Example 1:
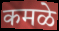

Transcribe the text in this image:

कमळे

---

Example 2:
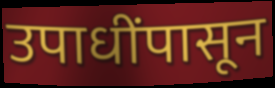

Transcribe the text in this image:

उपाधींपासून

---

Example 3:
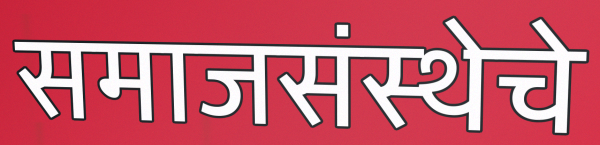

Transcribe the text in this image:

समाजसंस्थेचे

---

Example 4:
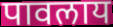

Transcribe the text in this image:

पावलाय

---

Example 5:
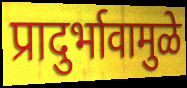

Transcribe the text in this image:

प्रादुर्भावामुळे